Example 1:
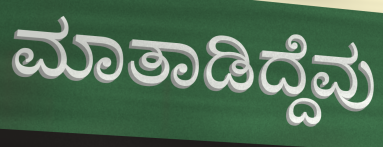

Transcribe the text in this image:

ಮಾತಾಡಿದ್ದೆವು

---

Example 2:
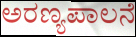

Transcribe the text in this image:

ಅರಣ್ಯಪಾಲನೆ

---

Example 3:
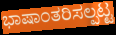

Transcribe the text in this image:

ಭಾಷಾಂತರಿಸಲ್ಪಟ್ಟ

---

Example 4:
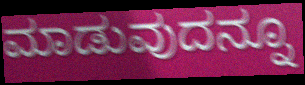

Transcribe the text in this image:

ಮಾಡುವುದನ್ನೂ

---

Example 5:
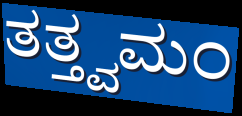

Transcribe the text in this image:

ತತ್ತ್ವಮಂ